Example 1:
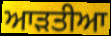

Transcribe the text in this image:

ਆੜਤੀਆ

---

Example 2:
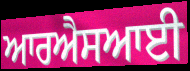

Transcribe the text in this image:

ਆਰਐਸਆਈ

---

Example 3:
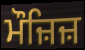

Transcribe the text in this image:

ਮੌਜ਼ਿਜ਼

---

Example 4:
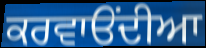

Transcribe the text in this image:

ਕਰਵਾੳਂਦੀਆ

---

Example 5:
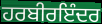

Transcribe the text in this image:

ਹਰਬੀਰਇੰਦਰ